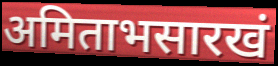
अमिताभसारखं